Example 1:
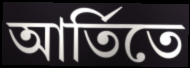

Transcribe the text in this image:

আর্তিতে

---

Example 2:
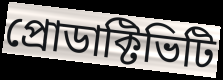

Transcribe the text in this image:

প্রোডাক্টিভিটি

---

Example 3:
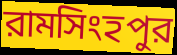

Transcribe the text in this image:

রামসিংহপুর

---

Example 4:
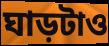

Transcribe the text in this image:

ঘাড়টাও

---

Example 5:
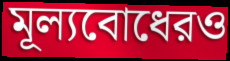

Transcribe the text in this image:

মূল্যবোধেরও